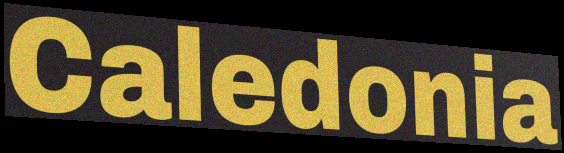
Caledonia